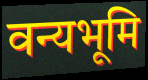
वन्यभूमि